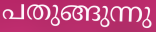
പതുങ്ങുന്നു